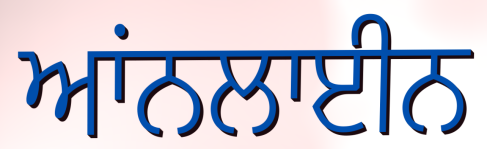
ਆਂਨਲਾਈਨ